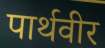
पार्थवीर